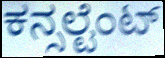
ಕನ್ಸಲ್ಟೆಂಟ್